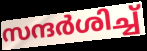
സന്ദർശിച്ച്